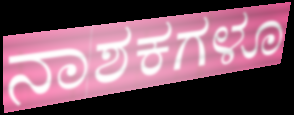
ನಾಶಕಗಳೂ